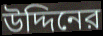
উদ্দিনের